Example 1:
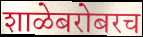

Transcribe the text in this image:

शाळेबरोबरच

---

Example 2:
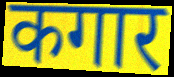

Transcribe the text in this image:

कगार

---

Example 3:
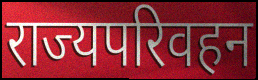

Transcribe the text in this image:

राज्यपरिवहन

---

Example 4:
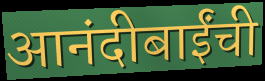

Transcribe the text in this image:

आनंदीबाईंची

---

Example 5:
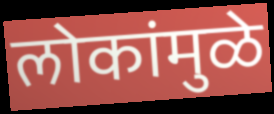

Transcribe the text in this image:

लोकांमुळे